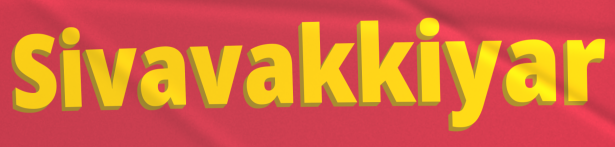
Sivavakkiyar